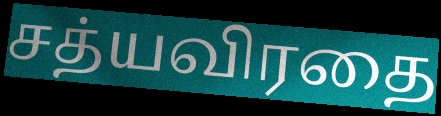
சத்யவிரதை